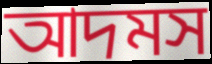
আদমস